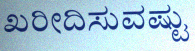
ಖರೀದಿಸುವಷ್ಟು